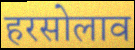
हरसोलाव